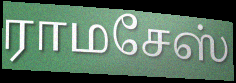
ராமசேஸ்